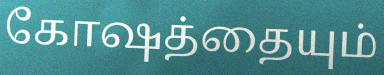
கோஷத்தையும்